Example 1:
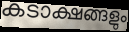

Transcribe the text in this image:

കടാക്ഷങ്ങളും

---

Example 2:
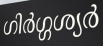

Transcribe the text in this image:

ഗിർഗ്ഗശ്യർ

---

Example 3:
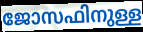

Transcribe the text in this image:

ജോസഫിനുള്ള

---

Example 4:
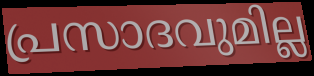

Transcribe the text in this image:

പ്രസാദവുമില്ല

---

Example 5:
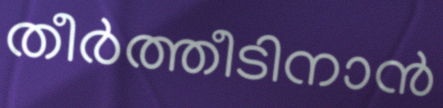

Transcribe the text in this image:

തീർത്തീടിനാൻ